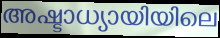
അഷ്ടാധ്യായിയിലെ